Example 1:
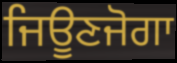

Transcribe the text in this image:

ਜਿਊਣਜੋਗਾ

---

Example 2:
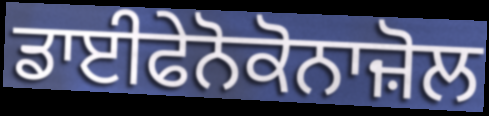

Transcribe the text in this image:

ਡਾਈਫੇਨੋਕੋਨਾਜ਼ੋਲ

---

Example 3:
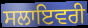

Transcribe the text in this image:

ਸਲਾਇਵਰੀ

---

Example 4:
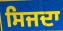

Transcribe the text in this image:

ਸਿਜਦਾ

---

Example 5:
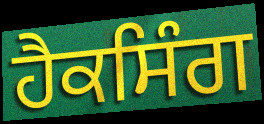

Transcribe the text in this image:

ਹੈਕਸਿੰਗ